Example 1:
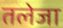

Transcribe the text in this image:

तलेजा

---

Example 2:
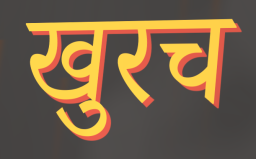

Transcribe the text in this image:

खुरच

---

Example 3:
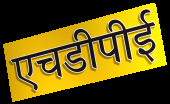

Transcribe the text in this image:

एचडीपीई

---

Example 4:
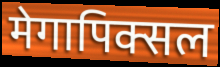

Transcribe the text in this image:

मेगापिक्सल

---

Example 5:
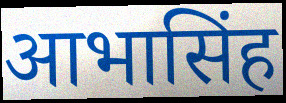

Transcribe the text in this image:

आभासिंह